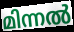
മിന്നൽ